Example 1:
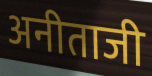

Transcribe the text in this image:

अनीताजी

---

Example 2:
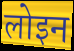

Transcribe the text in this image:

लोइन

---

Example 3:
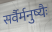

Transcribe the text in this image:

सर्वैर्मनुष्यैः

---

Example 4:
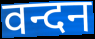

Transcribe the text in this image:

वन्दन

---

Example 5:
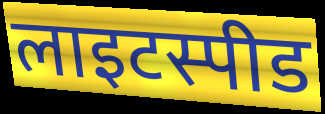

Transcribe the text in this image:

लाइटस्पीड